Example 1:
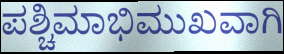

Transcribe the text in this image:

ಪಶ್ಚಿಮಾಭಿಮುಖವಾಗಿ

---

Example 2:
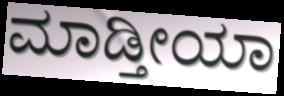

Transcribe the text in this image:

ಮಾಡ್ತೀಯಾ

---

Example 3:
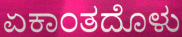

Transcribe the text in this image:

ಏಕಾಂತದೊಳು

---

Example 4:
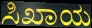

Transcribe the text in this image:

ಸಿಖಾಯ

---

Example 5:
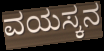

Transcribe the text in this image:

ವಯಸ್ಕನ